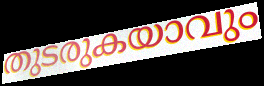
തുടരുകയാവും